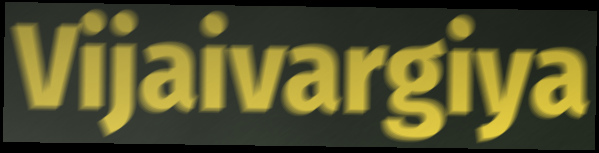
Vijaivargiya